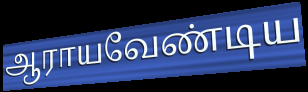
ஆராயவேண்டிய